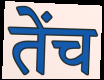
तेंच